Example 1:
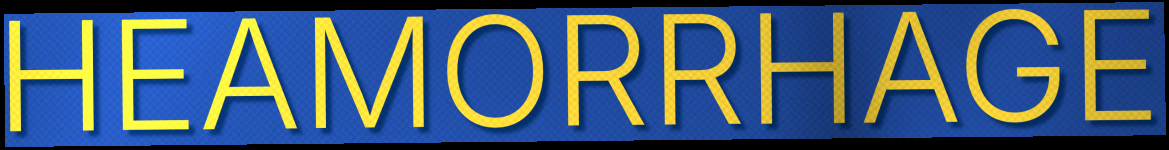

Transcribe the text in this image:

HEAMORRHAGE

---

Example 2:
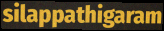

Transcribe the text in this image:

silappathigaram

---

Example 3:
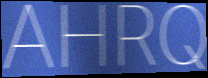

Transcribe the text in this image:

AHRQ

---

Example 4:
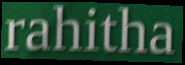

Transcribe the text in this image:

rahitha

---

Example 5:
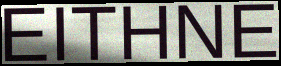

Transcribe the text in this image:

EITHNE